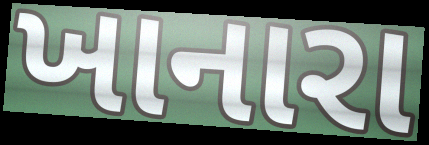
ખાનારા